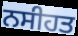
ਨਸੀਹਤ